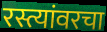
रस्त्यांवरचा